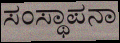
ಸಂಸ್ಥಾಪನಾ